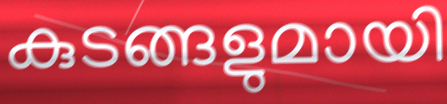
കുടങ്ങളുമായി